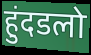
हुंदडलो